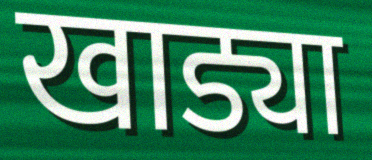
खाड्या